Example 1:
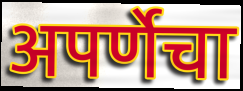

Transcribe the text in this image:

अपर्णेचा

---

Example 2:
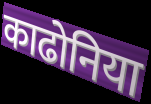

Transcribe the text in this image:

काढोनिया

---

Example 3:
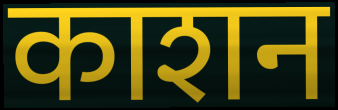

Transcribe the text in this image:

काशन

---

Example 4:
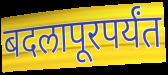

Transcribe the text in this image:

बदलापूरपर्यंत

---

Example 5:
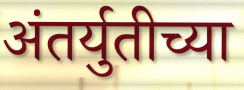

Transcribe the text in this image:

अंतर्युतीच्या